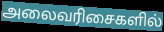
அலைவரிசைகளில்